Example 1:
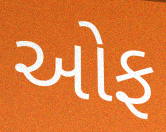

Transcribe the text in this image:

ઓફ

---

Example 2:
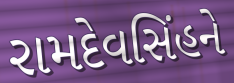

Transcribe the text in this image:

રામદેવસિંહને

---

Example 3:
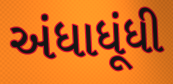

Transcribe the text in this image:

અંધાધૂંધી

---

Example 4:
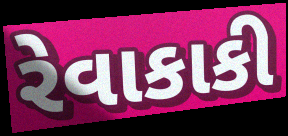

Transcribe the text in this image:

રેવાકાકી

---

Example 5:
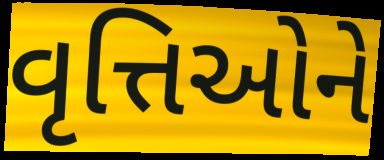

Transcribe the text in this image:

વૃત્તિઓને